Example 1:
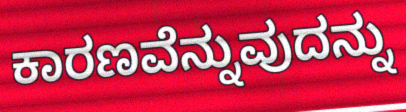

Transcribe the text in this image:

ಕಾರಣವೆನ್ನುವುದನ್ನು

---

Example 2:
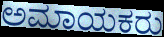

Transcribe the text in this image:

ಅಮಾಯಕರು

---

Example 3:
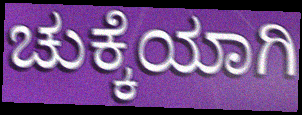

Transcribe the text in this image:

ಚುಕ್ಕೆಯಾಗಿ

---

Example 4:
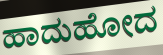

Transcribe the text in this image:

ಹಾದುಹೋದ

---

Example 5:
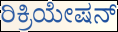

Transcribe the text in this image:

ರಿಕ್ರಿಯೇಷನ್